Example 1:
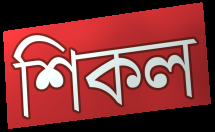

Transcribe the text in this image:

শিকল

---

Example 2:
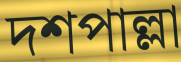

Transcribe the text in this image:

দশপাল্লা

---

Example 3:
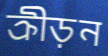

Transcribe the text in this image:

ক্রীড়ন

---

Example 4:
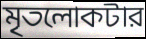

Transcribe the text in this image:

মৃতলোকটার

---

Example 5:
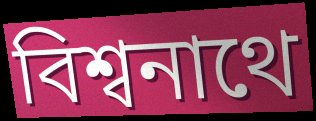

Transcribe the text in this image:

বিশ্বনাথে